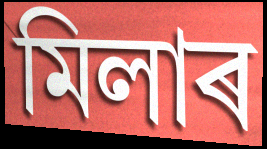
মিলাৰ